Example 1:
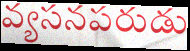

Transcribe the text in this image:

వ్యసనపరుడు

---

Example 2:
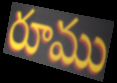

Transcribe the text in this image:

రూము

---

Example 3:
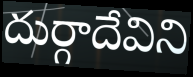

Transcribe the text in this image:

దుర్గాదేవిని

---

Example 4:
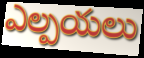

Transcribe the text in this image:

ఎల్పయలు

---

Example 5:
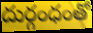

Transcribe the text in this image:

దుర్గంధంతో